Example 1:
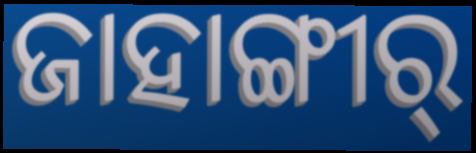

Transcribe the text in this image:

ଜାହାଙ୍ଗୀର୍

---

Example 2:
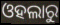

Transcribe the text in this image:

ଓହଲାରୁ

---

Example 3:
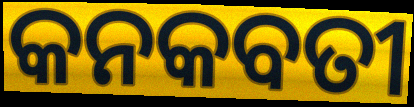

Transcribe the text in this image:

କନକବତୀ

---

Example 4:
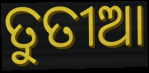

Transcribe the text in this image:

ତୁତୀଆ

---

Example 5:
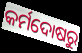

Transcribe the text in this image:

କର୍ମଦୋଷରୁ